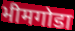
भीमगोडा